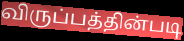
விருப்பத்தின்படி